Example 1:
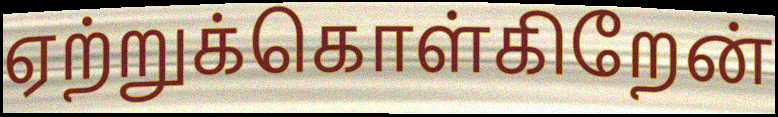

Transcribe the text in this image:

ஏற்றுக்கொள்கிறேன்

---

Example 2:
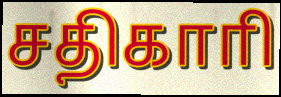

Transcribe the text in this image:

சதிகாரி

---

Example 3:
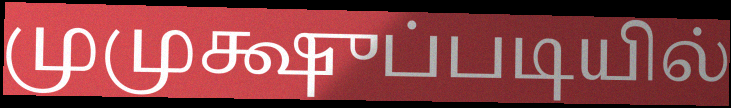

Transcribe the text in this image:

முமுக்ஷுப்படியில்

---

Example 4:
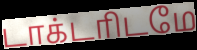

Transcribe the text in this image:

டாக்டரிடமே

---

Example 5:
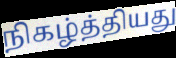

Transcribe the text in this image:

நிகழ்த்தியது